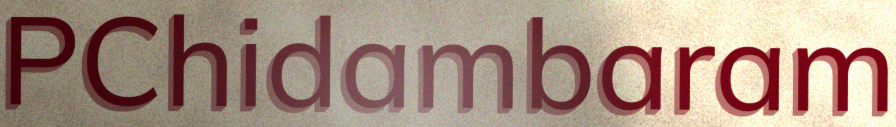
PChidambaram